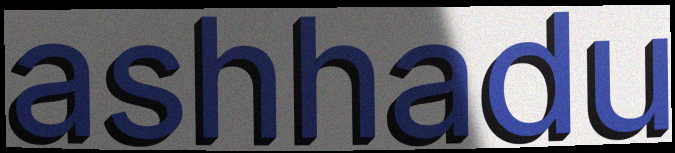
ashhadu